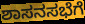
ಶಾಸನಸಭೆಗೆ